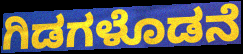
ಗಿಡಗಳೊಡನೆ